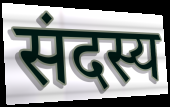
संदस्य